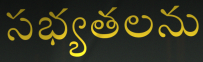
సభ్యతలను